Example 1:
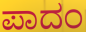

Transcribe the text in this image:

ಪಾದಂ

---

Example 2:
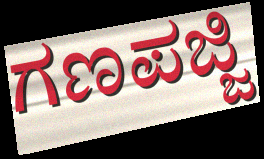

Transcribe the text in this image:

ಗಣಪಜ್ಜಿ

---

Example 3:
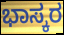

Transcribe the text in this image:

ಭಾಸ್ಕರ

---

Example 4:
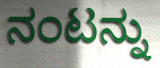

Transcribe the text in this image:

ನಂಟನ್ನು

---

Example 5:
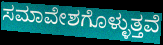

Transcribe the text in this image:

ಸಮಾವೇಶಗೊಳ್ಳುತ್ತವೆ